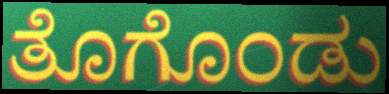
ತೊಗೊಂಡು